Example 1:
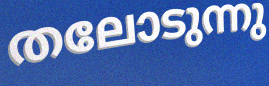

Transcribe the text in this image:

തലോടുന്നു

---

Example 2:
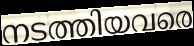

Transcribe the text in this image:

നടത്തിയവരെ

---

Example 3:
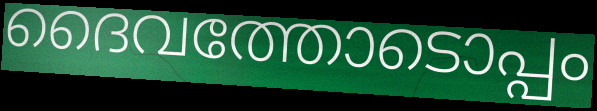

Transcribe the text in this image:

ദൈവത്തോടൊപ്പം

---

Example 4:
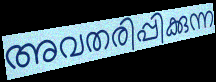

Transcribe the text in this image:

അവതരിപ്പിക്കുന്ന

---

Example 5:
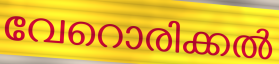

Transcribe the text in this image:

വേറൊരിക്കൽ